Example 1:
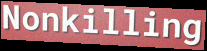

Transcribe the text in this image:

Nonkilling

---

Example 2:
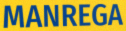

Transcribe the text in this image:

MANREGA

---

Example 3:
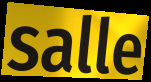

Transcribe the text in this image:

salle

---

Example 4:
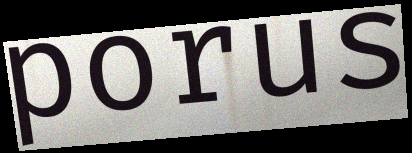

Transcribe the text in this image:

porus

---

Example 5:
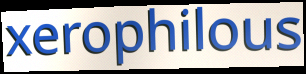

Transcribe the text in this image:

xerophilous